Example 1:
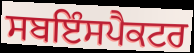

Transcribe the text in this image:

ਸਬਇੰਸਪੈਕਟਰ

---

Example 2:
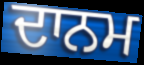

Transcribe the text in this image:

ਦਾਨਮ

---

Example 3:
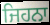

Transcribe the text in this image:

ਜਿਹਨਾ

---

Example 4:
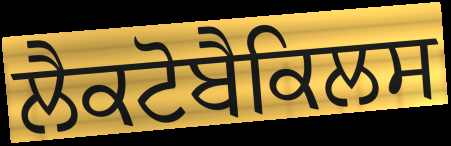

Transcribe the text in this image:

ਲੈਕਟੋਬੈਕਿਲਸ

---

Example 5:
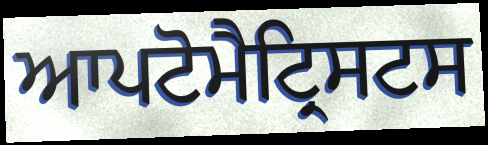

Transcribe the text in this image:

ਆਪਟੋਮੈਟ੍ਰਿਸਟਸ